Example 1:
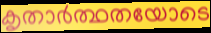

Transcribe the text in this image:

കൃതാർത്ഥതയോടെ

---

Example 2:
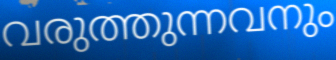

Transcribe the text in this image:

വരുത്തുന്നവനും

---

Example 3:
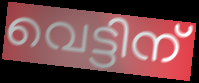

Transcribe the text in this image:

വെട്ടിന്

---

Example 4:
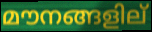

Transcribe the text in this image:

മൗനങ്ങളില്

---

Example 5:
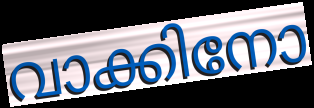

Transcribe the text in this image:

വാക്കിനോ